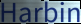
Harbin